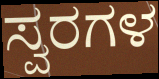
ಸ್ವರಗಳ